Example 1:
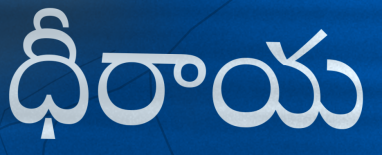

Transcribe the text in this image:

ధీరాయ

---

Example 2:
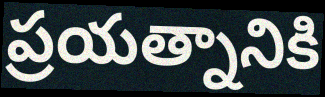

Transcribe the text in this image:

ప్రయత్నానికి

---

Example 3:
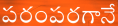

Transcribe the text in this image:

పరంపరగానే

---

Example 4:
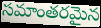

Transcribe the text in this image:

సమాంతరమైన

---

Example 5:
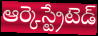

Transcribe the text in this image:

ఆర్కెస్ట్రేటెడ్